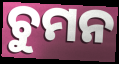
ଚୁମନ